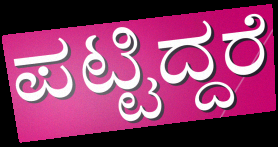
ಪಟ್ಟಿದ್ದರೆ